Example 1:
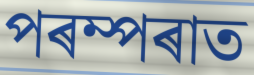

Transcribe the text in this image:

পৰম্পৰাত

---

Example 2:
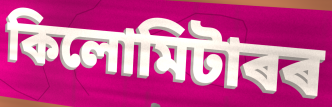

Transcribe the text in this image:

কিলোমিটাৰৰ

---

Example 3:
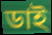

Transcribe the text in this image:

ডাই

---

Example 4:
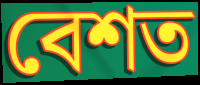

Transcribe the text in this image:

বেশত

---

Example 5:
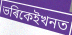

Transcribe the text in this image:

ভৰিকেইখনত